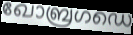
ഖോബ്രഗഡെ